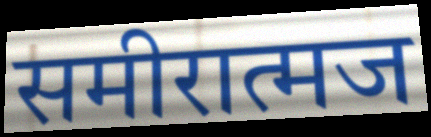
समीरात्मज